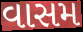
વાસમ